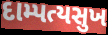
દામ્પત્યસુખ